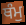
ਥੰਮੁ